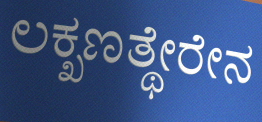
ಲಕ್ಖಣತ್ಥೇರೇನ